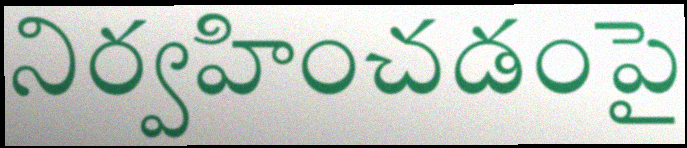
నిర్వహించడంపై